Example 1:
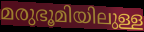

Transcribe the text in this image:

മരുഭൂമിയിലുള്ള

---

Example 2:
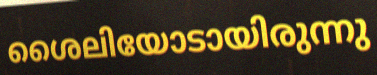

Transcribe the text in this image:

ശൈലിയോടായിരുന്നു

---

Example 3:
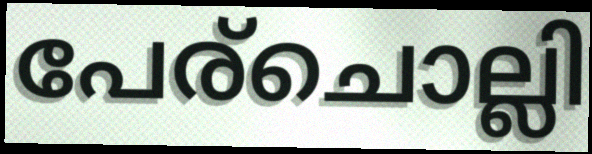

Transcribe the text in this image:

പേര്ചൊല്ലി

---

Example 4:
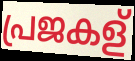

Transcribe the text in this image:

പ്രജകള്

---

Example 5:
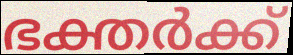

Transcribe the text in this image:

ഭക്തർക്ക്